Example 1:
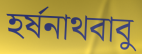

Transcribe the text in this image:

হর্ষনাথবাবু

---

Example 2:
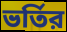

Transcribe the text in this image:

ভর্তির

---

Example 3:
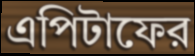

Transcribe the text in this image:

এপিটাফের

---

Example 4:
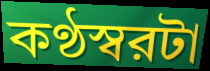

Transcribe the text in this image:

কণ্ঠস্বরটা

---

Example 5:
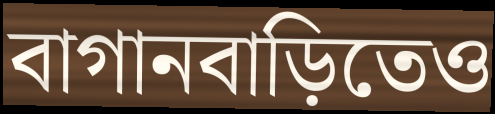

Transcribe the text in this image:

বাগানবাড়িতেও